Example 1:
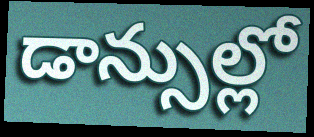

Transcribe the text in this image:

డాన్సుల్లో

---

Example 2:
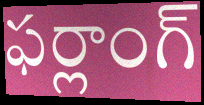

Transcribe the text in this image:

ఫర్లాంగ్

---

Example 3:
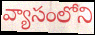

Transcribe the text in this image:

వ్యాసంలోని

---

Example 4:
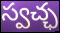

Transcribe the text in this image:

స్వచ్ఛ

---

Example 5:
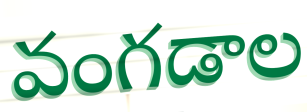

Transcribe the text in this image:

వంగడాల